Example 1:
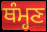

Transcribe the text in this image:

ਥੰਮ੍ਹਣ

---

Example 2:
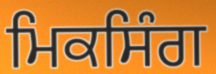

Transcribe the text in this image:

ਮਿਕਸਿੰਗ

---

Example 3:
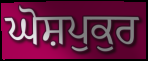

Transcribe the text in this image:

ਘੋਸ਼ਪੁਕੁਰ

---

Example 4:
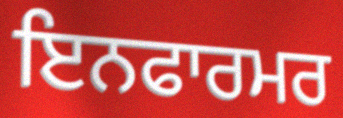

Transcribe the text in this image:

ਇਨਫਾਰਮਰ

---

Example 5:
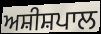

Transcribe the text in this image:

ਅਸ਼ੀਸ਼ਪਾਲ